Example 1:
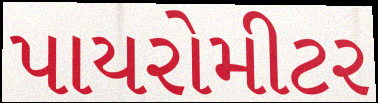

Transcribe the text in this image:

પાયરોમીટર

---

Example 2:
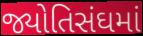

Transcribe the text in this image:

જ્યોતિસંઘમાં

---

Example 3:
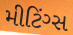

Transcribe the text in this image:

મીટિંગ્સ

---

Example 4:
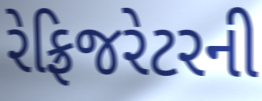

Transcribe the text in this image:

રેફ્રિજરેટરની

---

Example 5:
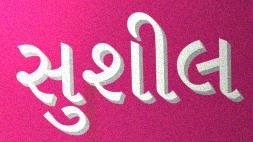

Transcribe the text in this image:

સુશીલ